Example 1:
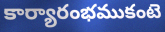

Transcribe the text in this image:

కార్యారంభముకంటె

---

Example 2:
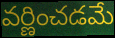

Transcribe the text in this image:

వర్ణించడమే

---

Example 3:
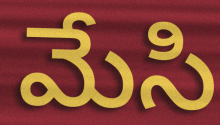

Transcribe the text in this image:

మేసి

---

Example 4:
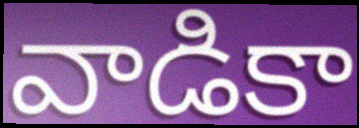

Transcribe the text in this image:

వాడికా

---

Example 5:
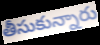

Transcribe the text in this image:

తీసుకున్నారు